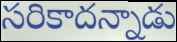
సరికాదన్నాడు